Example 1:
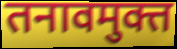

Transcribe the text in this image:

तनावमुक्त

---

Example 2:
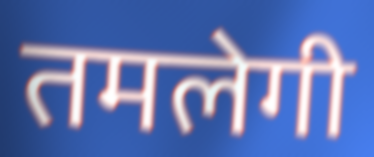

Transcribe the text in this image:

तमलेगी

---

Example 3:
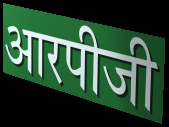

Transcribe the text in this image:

आरपीजी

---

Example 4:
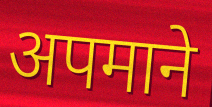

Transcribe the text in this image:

अपमाने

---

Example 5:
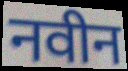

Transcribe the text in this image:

नवीन